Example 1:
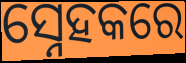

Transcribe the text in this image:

ସ୍ନେହକରେ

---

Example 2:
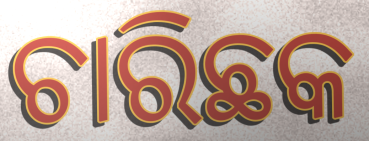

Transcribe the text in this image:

ଚାରିଛକ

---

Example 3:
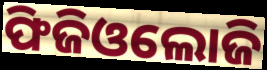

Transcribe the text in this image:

ଫିଜିଓଲୋଜି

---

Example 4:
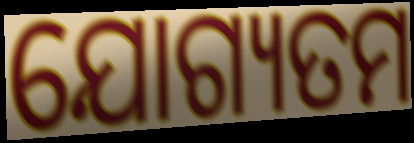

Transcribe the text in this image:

ଯୋଗ୍ୟତମ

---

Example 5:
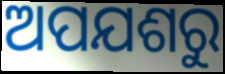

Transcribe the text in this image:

ଅପଯଶରୁ